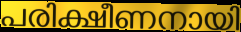
പരിക്ഷീണനായി